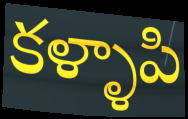
కళ్ళాపి